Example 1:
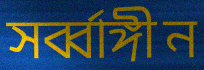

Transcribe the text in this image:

সর্ব্বাঙ্গীন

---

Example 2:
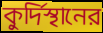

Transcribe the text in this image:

কুর্দিস্থানের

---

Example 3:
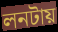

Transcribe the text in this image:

লনটায়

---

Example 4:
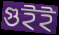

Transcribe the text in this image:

গুইই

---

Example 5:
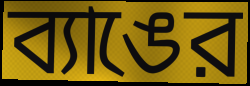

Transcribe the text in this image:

ব্যাঙের